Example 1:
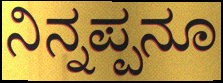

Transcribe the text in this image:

ನಿನ್ನಪ್ಪನೂ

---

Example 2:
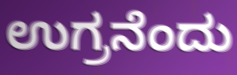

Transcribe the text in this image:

ಉಗ್ರನೆಂದು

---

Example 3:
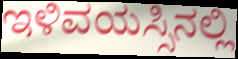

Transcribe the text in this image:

ಇಳಿವಯಸ್ಸಿನಲ್ಲಿ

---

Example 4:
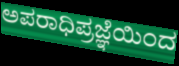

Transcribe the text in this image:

ಅಪರಾಧಿಪ್ರಜ್ಞೆಯಿಂದ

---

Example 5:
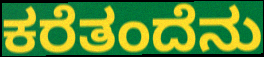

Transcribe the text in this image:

ಕರೆತಂದೆನು